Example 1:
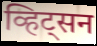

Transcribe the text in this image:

व्हिट्सन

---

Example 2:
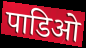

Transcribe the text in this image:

पाडिओ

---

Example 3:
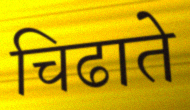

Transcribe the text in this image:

चिढाते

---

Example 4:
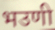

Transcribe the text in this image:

भउणी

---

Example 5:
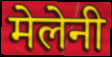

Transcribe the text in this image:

मेलेनी